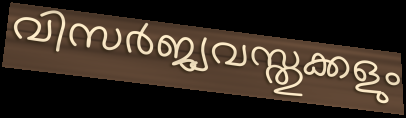
വിസർജ്യവസ്തുക്കളും